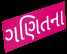
ગણિતના